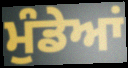
ਮੁੰਡੇਆਂ